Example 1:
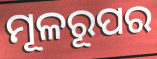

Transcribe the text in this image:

ମୂଳରୂପର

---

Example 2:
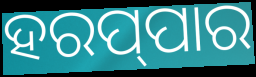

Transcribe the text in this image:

ହରପ୍‌ପାର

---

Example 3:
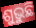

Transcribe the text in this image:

ଶୁଭୁଛି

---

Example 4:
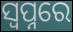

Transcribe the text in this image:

ସ୍ୱପ୍ନରେ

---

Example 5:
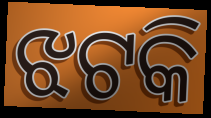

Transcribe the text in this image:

ଝଟକି